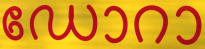
ഡോറാ